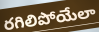
రగిలిపోయేలా